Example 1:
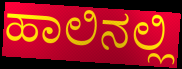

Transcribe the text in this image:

ಹಾಲಿನಲ್ಲಿ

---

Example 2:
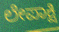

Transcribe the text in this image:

ಲೇಪಾಕ್ಷಿ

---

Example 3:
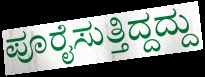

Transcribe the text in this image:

ಪೂರೈಸುತ್ತಿದ್ದದ್ದು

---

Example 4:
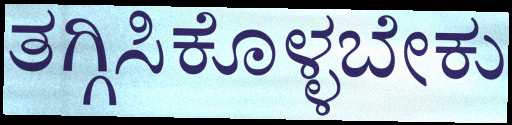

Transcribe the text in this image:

ತಗ್ಗಿಸಿಕೊಳ್ಳಬೇಕು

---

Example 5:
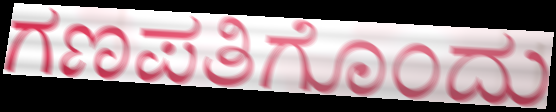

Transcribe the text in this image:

ಗಣಪತಿಗೊಂದು